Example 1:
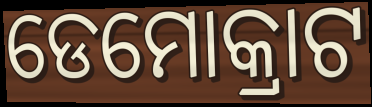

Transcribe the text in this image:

ଡେମୋକ୍ରାଟ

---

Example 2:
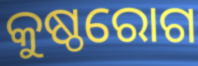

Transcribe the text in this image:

କୁଷ୍ଠରୋଗ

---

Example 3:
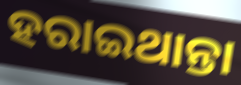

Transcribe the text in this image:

ହରାଇଥାନ୍ତା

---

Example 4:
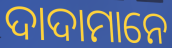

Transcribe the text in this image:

ଦାଦାମାନେ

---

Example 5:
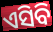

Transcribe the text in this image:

ଏସିବି